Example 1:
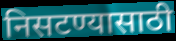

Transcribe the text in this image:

निसटण्यासाठी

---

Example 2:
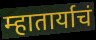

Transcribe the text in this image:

म्हातार्याचं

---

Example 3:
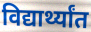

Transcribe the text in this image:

विद्यार्थ्यांत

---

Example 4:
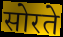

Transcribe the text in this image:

सोरते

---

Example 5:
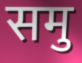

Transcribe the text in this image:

समु